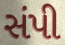
સંપી